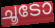
ചൂടോ